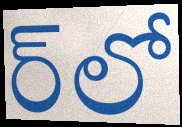
ర్‌లో